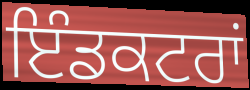
ਇੰਡਕਟਰਾਂ